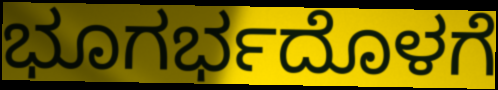
ಭೂಗರ್ಭದೊಳಗೆ